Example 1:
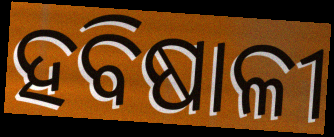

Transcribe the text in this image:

ହବିଷାଳୀ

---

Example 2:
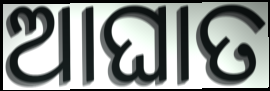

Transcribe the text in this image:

ଆଘାତ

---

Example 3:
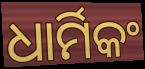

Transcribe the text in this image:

ଧାର୍ମିକଂ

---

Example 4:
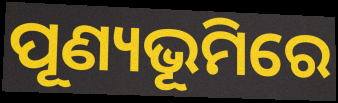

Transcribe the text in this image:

ପୂଣ୍ୟଭୂମିରେ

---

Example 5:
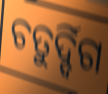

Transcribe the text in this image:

ଚତୁର୍ଦ୍ଦିଗ